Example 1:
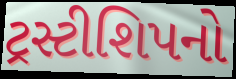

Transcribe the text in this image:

ટ્રસ્ટીશિપનો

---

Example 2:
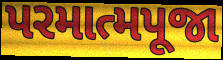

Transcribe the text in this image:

પરમાત્મપૂજા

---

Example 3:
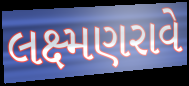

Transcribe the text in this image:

લક્ષ્મણરાવે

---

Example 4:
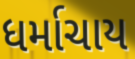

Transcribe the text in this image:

ધર્માચાય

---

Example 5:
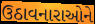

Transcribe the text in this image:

ઉઠાવનારાઓને